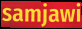
samjawi